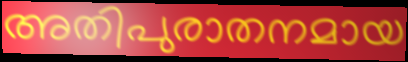
അതിപുരാതനമായ